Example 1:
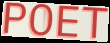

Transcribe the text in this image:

POET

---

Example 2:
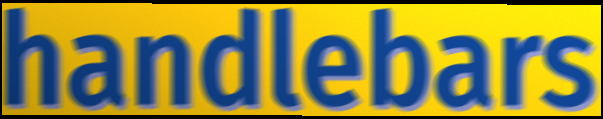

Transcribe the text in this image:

handlebars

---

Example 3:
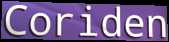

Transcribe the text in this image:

Coriden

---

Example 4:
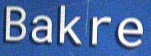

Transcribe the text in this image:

Bakre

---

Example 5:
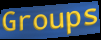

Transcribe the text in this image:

Groups